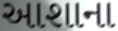
આશાના